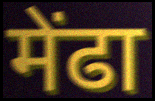
मेंढा